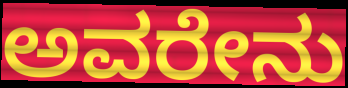
ಅವರೇನು